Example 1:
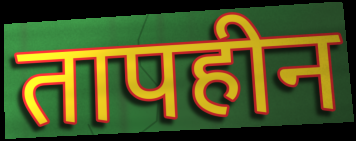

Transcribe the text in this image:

तापहीन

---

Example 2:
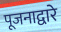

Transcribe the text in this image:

पूजनाद्वारे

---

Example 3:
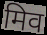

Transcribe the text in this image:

मिव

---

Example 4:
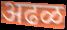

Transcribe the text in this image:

अढळ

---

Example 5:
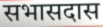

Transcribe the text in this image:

सभासदास